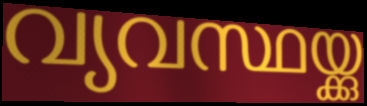
വ്യവസ്ഥയ്ക്കു